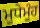
ਮੂਧੇਮੂੰਹ